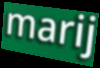
marij